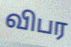
விபர